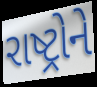
રાષ્ટ્રોને